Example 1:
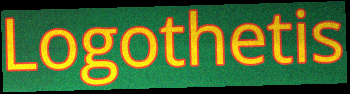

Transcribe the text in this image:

Logothetis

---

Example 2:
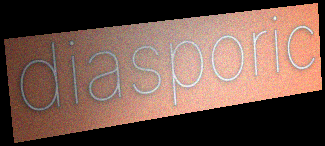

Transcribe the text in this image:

diasporic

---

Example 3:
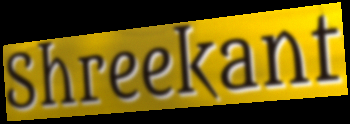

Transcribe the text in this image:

Shreekant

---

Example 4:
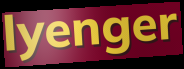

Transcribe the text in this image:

Iyenger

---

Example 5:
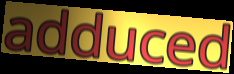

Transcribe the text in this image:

adduced